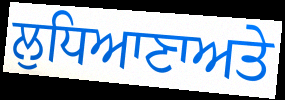
ਲੁਧਿਆਣਾਅਤੇ